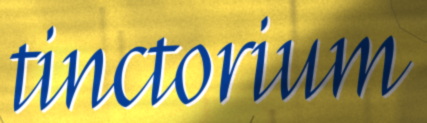
tinctorium